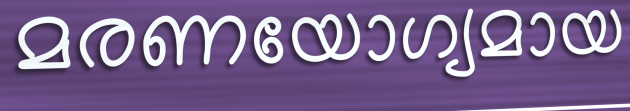
മരണയോഗ്യമായ